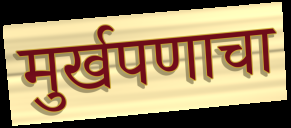
मुर्खपणाचा